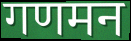
गणमन